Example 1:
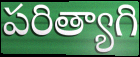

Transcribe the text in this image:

పరిత్యాగి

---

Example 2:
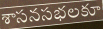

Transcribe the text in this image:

శాసనసభలకూ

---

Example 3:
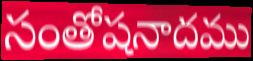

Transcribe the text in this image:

సంతోషనాదము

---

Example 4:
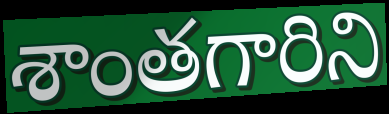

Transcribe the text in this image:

శాంతగారిని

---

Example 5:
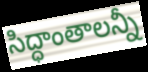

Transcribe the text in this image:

సిద్ధాంతాలన్నీ